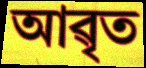
আৱৃত